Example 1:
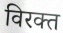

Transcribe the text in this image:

विरक्त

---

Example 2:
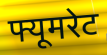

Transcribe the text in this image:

फ्यूमरेट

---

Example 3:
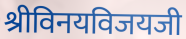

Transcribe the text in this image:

श्रीविनयविजयजी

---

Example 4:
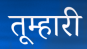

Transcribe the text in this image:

तूम्हारी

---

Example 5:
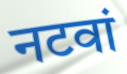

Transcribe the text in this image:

नटवां